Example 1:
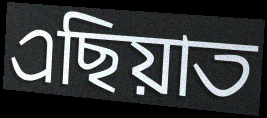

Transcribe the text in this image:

এছিয়াত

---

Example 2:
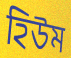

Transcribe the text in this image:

হিউম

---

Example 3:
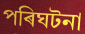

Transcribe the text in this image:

পৰিঘটনা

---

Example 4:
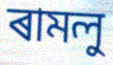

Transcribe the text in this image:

ৰামলু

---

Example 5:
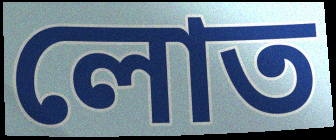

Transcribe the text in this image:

লোত